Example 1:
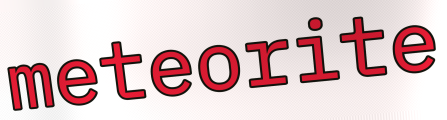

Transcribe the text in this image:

meteorite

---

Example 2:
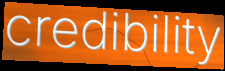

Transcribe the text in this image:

credibility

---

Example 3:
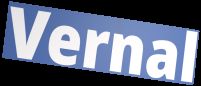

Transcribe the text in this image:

Vernal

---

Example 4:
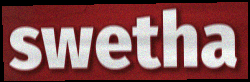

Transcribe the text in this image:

swetha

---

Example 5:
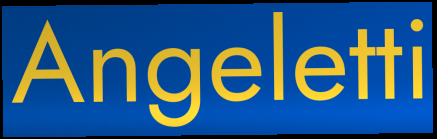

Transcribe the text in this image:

Angeletti